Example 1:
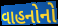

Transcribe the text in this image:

વાહનોનો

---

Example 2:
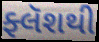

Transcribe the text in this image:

ફ્લૅશથી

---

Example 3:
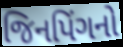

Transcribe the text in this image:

જિનપિંગનો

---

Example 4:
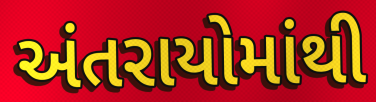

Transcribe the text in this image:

અંતરાયોમાંથી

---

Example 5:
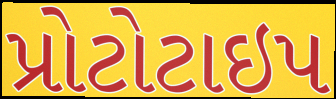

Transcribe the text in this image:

પ્રોટોટાઇપ